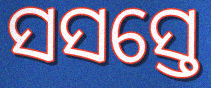
ସସସ୍ତେ